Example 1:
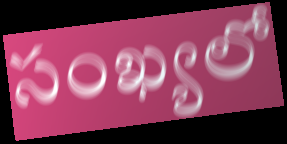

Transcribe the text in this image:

సంఖ్యలో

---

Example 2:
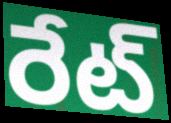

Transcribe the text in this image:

రేట్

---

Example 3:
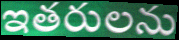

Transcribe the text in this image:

ఇతరులను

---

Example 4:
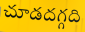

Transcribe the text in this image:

చూడదగ్గది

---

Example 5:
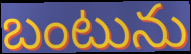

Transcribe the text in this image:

బంటును